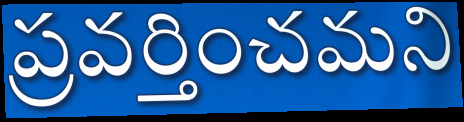
ప్రవర్తించమని